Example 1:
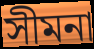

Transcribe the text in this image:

সীমনা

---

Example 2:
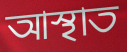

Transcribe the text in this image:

আস্থাত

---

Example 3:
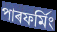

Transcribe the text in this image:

পাৰফৰ্মিং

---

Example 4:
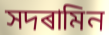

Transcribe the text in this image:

সদৰামিন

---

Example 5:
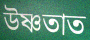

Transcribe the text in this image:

উষ্ণতাত